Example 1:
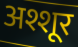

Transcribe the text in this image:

अश्शूर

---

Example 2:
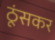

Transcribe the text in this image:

ठूंसकर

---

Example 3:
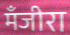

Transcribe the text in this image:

मँजीरा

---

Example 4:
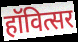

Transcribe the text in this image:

हॉवित्सर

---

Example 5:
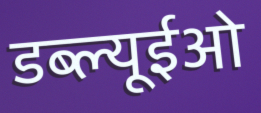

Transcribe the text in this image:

डब्ल्यूईओ